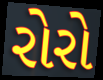
રોરો